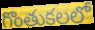
గొంతుకలలో